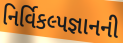
નિર્વિકલ્પજ્ઞાનની